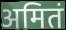
अमितं